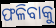
ଫଳିବାକୁ